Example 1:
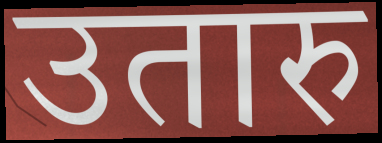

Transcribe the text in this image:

उतारु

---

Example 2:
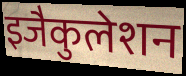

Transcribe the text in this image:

इजैकुलेशन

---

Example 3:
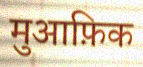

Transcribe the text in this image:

मुआफ़िक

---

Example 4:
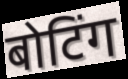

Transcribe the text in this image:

बोटिंग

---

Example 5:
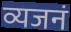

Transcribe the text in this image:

व्यजनं